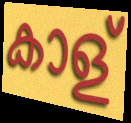
കാള്